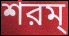
শরম্